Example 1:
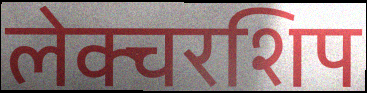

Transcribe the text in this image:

लेक्चरशिप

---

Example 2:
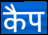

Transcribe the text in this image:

कैप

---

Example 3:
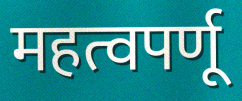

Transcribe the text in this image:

महत्‍वपर्णू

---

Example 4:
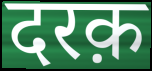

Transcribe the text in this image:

दरक़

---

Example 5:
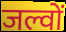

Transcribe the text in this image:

जल्वों